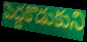
పెద్దకొడుకుని